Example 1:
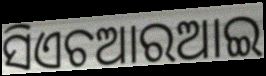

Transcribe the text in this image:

ସିଏଚଆରଆଇ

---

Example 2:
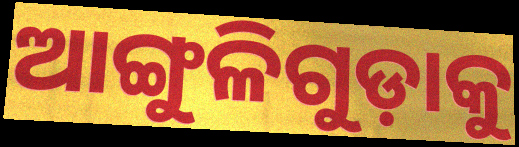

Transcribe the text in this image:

ଆଙ୍ଗୁଳିଗୁଡ଼ାକୁ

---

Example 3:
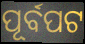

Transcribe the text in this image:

ପୂର୍ବପଟ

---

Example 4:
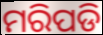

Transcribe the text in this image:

ମରିପଡି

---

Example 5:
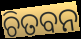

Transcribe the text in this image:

ଚିତବନ